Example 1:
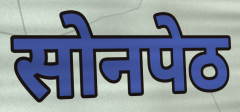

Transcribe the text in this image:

सोनपेठ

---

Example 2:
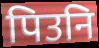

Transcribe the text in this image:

पिउनि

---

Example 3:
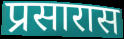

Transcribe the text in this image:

प्रसारास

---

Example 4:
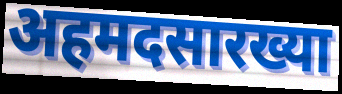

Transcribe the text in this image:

अहमदसारख्या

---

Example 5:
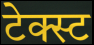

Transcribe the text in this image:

टेक्स्ट